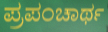
ಪ್ರಪಂಚಾರ್ಥ